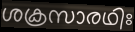
ശക്രസാരഥിഃ